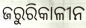
ଜରୁରିକାଳୀନ